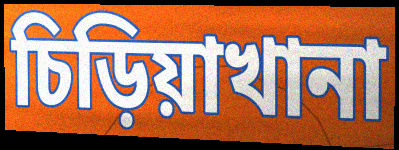
চিড়িয়াখানা